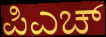
ಪಿಎಚ್